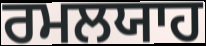
ਰਮਲਯਾਹ